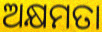
ଅକ୍ଷମତା